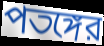
পতঙ্গের